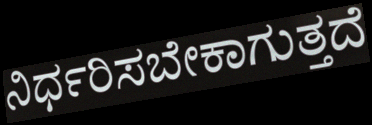
ನಿರ್ಧರಿಸಬೇಕಾಗುತ್ತದೆ